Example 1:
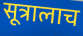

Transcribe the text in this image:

सूत्रालाच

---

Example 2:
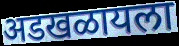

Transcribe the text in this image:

अडखळायला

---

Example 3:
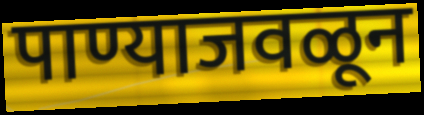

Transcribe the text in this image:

पाण्याजवळून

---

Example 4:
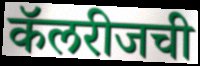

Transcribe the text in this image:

कॅलरीजची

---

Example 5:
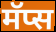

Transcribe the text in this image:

मॅप्स